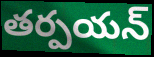
తర్పయన్